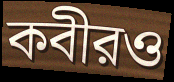
কবীরও